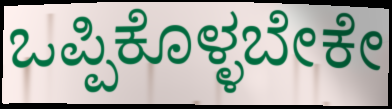
ಒಪ್ಪಿಕೊಳ್ಳಬೇಕೇ